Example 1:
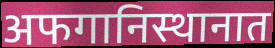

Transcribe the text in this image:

अफगानिस्थानात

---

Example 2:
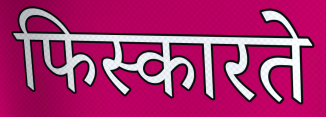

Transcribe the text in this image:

फिस्कारते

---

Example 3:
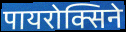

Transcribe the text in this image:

पायरोक्सिने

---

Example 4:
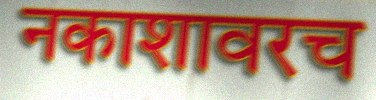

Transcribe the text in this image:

नकाशावरच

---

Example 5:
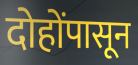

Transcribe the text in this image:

दोहोंपासून